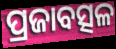
ପ୍ରଜାବତ୍ସଳ